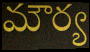
మౌర్య